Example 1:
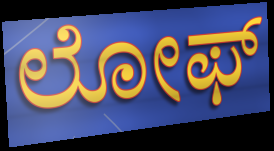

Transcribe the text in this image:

ಲೋಫ್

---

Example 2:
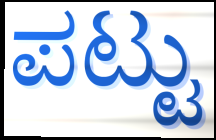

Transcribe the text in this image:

ಪಟ್ಟು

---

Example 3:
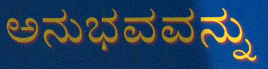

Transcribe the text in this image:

ಅನುಭವವನ್ನು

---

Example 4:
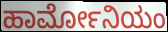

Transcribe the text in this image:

ಹಾರ್ಮೋನಿಯಂ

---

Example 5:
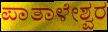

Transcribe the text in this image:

ಪಾತಾಳೇಶ್ವರ